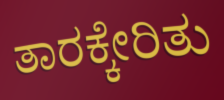
ತಾರಕ್ಕೇರಿತು